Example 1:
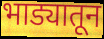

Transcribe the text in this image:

भाड्यातून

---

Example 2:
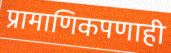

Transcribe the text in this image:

प्रामाणिकपणाही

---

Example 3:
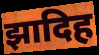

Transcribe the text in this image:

झादिह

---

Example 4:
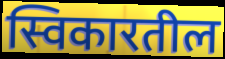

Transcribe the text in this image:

स्विकारतील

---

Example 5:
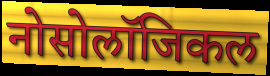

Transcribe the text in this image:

नोसोलॉजिकल